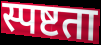
स्पष्टता